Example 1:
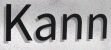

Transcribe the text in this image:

Kann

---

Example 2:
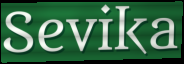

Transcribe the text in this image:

Sevika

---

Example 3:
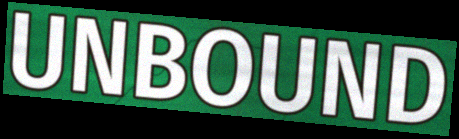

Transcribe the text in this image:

UNBOUND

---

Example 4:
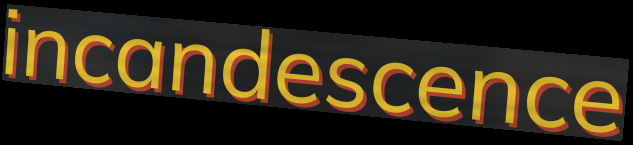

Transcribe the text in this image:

incandescence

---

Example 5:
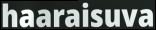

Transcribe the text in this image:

haaraisuva